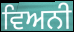
ਵਿਅਨੀ